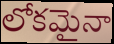
లోకమైనా